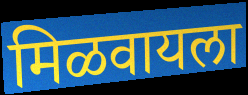
मिळवायला